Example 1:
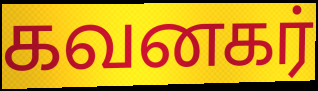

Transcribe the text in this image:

கவனகர்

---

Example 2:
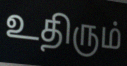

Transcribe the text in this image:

உதிரும்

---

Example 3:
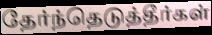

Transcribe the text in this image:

தேர்ந்தெடுத்தீர்கள்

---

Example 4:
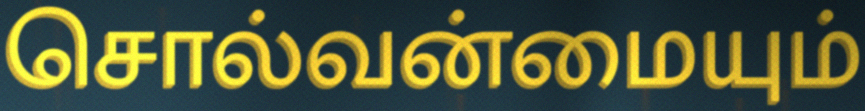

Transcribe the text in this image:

சொல்வன்மையும்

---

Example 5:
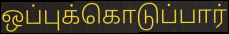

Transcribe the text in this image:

ஒப்புக்கொடுப்பார்